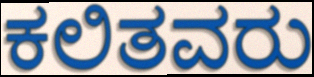
ಕಲಿತವರು